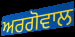
ਅਰਗੋਵਾਲ